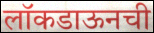
लॉकडाऊनची